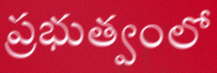
ప్రభుత్వంలో